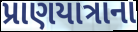
પ્રાણયાત્રાના